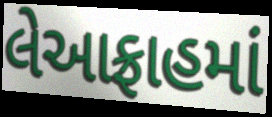
લેઆફ્રાહમાં